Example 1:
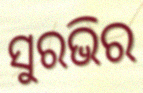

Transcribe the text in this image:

ସୁରଭିର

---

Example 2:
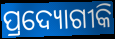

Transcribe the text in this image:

ପ୍ରଦ୍ୟୋଗୀକି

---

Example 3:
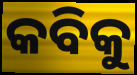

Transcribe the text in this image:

କବିକୁ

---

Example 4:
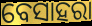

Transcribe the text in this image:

ବେସାହରା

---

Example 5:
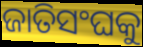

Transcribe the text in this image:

ଜାତିସଂଘକୁ